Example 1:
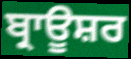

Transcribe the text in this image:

ਬ੍ਰਾਊਸ਼ਰ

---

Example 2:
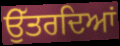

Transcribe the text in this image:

ਉੱਤਰਦਿਆਂ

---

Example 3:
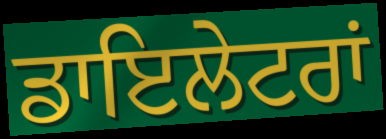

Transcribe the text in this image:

ਡਾਇਲੇਟਰਾਂ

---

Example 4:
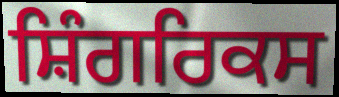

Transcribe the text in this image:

ਸ਼ਿੰਗਰਿਕਸ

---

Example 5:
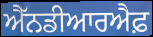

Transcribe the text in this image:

ਐੱਨਡੀਆਰਐਫ਼